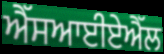
ਐੱਸਆਈਏਐੱਲ